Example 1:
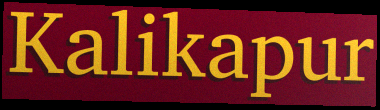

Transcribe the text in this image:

Kalikapur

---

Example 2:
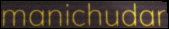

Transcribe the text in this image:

manichudar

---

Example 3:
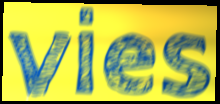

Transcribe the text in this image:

vies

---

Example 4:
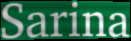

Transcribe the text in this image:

Sarina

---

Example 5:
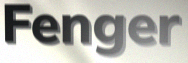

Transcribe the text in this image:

Fenger